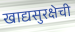
खाद्यसुरक्षेची